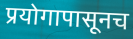
प्रयोगापासूनच